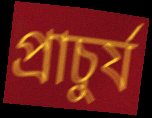
প্রাচুর্য